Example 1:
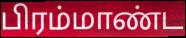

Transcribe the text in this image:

பிரம்மாண்ட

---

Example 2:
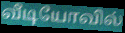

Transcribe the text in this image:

வீடியோவில்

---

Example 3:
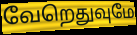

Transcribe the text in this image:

வேறெதுவுமே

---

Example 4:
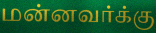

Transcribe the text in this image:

மன்னவர்க்கு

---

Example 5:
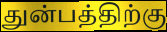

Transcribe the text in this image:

துன்பத்திற்கு